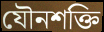
যৌনশক্তি